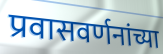
प्रवासवर्णनांच्या